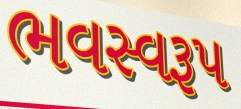
ભવસ્વરૂપ